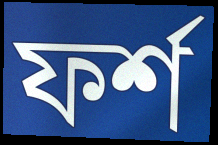
ফর্শ